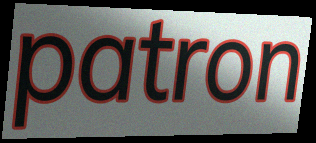
patron